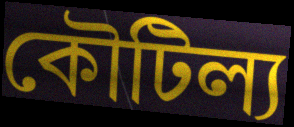
কৌটিল্য